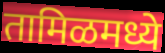
तामिळमध्ये